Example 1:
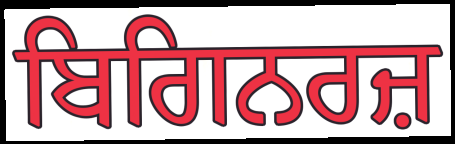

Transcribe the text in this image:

ਬਿਗਿਨਰਜ਼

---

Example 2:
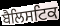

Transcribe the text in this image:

ਬੈਲਿਸਟਿਕ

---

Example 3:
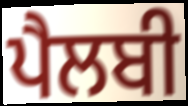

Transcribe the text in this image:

ਪੈਲਬੀ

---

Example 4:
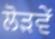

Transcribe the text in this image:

ਲੋੜਵੇਂ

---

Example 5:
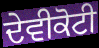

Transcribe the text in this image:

ਦੇਵੀਕੋਟੀ